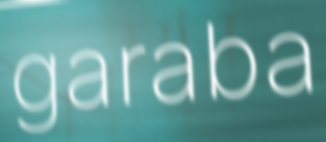
garaba